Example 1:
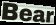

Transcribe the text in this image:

Bear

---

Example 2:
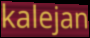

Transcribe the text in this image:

kalejan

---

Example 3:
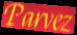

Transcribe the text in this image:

Parvez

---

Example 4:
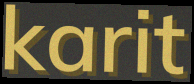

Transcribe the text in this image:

karit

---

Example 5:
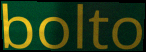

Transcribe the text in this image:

bolto